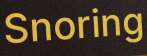
Snoring